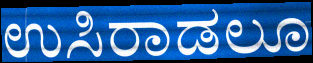
ಉಸಿರಾಡಲೂ